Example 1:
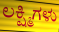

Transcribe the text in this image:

ಲಕ್ಷ್ಮಿಗಳು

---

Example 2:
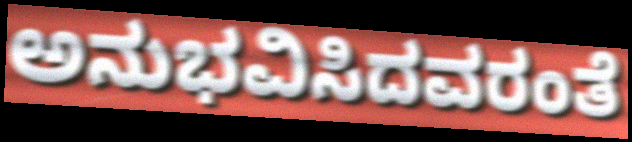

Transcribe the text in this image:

ಅನುಭವಿಸಿದವರಂತೆ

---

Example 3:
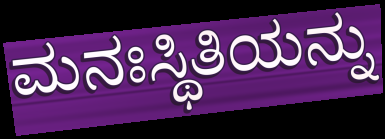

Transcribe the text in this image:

ಮನಃಸ್ಥಿತಿಯನ್ನು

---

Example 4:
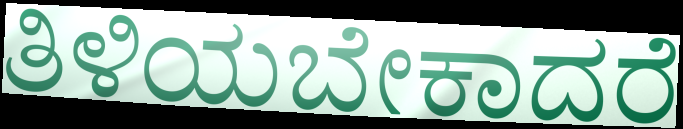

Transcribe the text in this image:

ತಿಳಿಯಬೇಕಾದರೆ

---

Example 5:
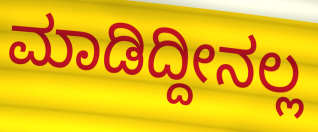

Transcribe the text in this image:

ಮಾಡಿದ್ದೀನಲ್ಲ